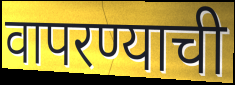
वापरण्याची